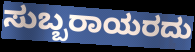
ಸುಬ್ಬರಾಯರದು